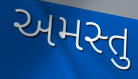
અમસ્તુ